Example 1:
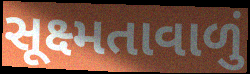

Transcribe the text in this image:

સૂક્ષ્મતાવાળું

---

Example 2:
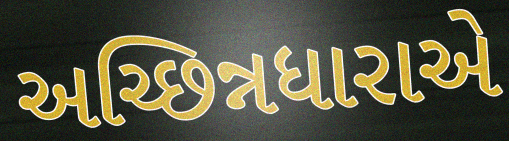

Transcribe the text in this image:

અચ્છિન્નધારાએ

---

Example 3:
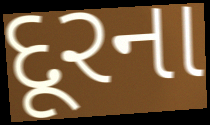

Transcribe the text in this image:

દૂરના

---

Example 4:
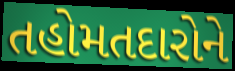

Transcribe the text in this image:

તહોમતદારોને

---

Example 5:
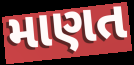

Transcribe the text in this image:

માણત